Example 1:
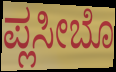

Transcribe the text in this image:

ಪ್ಲಸೀಬೊ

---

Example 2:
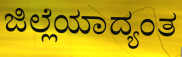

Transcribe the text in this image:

ಜಿಲ್ಲೆಯಾದ್ಯಂತ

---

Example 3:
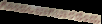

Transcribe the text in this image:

ಗೊಂದಲವಾಗಬಾರದೆಂದು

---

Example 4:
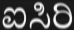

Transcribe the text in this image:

ಐಸಿರಿ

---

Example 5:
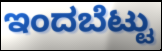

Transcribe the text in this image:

ಇಂದಬೆಟ್ಟು